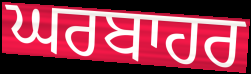
ਘਰਬਾਹਰ